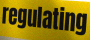
regulating